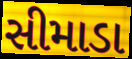
સીમાડા